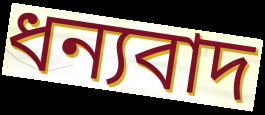
ধন্যবাদ